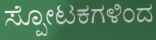
ಸ್ಪೋಟಕಗಳಿಂದ